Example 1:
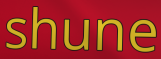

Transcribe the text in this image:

shune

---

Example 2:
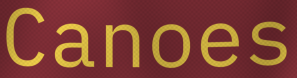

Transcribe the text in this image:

Canoes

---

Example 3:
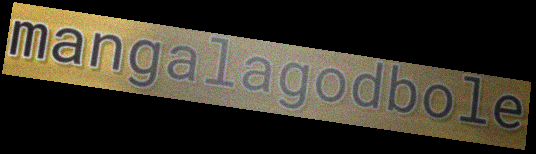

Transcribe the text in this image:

mangalagodbole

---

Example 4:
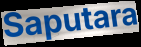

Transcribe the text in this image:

Saputara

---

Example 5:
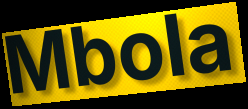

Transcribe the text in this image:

Mbola